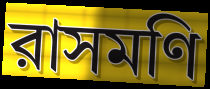
রাসমণি